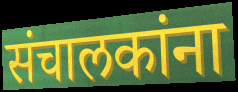
संचालकांना